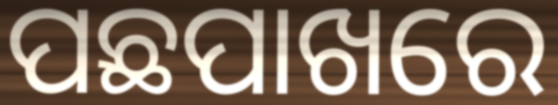
ପଛପାଖରେ